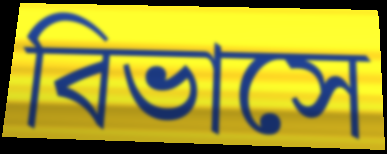
বিভাসে